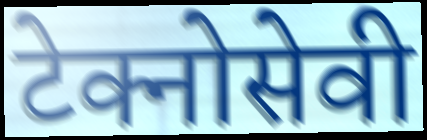
टेक्नोसेवी